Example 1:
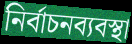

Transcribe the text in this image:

নির্বাচনব্যবস্থা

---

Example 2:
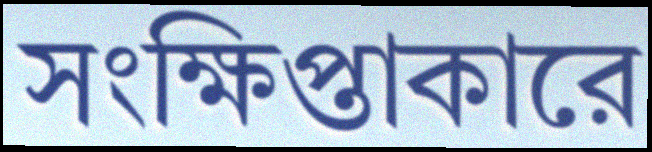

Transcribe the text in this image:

সংক্ষিপ্তাকারে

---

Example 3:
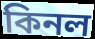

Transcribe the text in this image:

কিনল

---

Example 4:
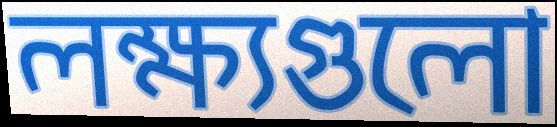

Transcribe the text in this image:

লক্ষ্যগুলো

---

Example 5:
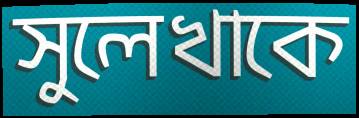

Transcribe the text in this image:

সুলেখাকে